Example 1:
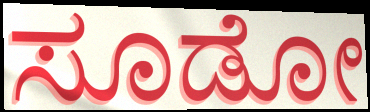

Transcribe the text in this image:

ಸೂಡೋ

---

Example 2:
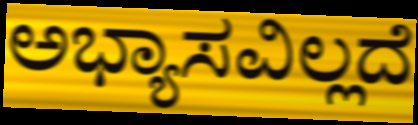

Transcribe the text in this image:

ಅಭ್ಯಾಸವಿಲ್ಲದೆ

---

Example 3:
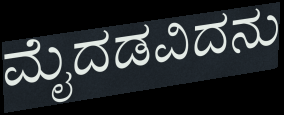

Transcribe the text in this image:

ಮೈದಡವಿದನು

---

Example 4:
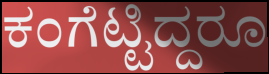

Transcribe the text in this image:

ಕಂಗೆಟ್ಟಿದ್ದರೂ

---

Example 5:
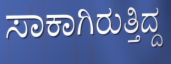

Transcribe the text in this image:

ಸಾಕಾಗಿರುತ್ತಿದ್ದ